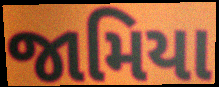
જામિયા